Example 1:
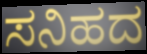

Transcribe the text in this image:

ಸನಿಹದ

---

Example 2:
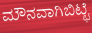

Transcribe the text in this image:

ಮೌನವಾಗಿಬಿಟ್ಟೆ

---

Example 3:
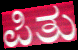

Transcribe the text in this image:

ಪಿತು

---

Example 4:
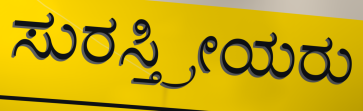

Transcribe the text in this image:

ಸುರಸ್ತ್ರೀಯರು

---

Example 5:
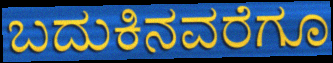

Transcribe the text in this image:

ಬದುಕಿನವರೆಗೂ